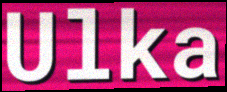
Ulka